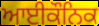
ਆਈਕੌਨਿਕ